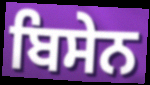
ਬਿਸੇਨ